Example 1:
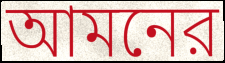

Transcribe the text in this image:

আমনের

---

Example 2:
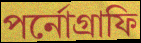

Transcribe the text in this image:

পর্নোগ্রাফি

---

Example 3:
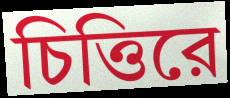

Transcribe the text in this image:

চিত্তিরে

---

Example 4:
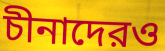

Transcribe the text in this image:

চীনাদেরও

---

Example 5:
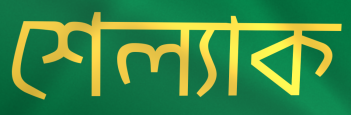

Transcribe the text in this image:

শেল্যাক